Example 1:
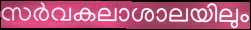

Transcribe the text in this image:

സർവകലാശാലയിലും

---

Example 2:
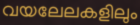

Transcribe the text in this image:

വയലേലകളിലും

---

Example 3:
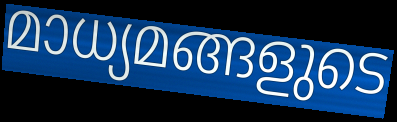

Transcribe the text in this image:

മാധ്യമങ്ങളുടെ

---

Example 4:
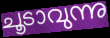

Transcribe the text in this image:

ചൂടാവുന്നു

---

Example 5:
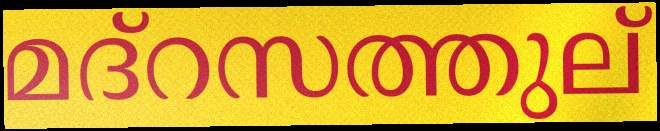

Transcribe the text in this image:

മദ്റസത്തുല്